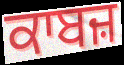
ਕਾਬਜ਼